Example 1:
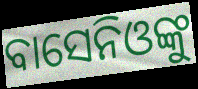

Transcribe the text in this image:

ବାସେନିଓଙ୍କୁ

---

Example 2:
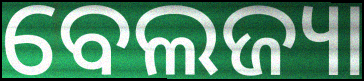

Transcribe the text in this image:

ବେଲଜ୍ୟା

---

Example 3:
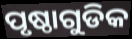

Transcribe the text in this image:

ପୃଷ୍ଠାଗୁଡିକ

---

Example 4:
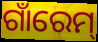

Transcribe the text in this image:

ଗାଁରେମ୍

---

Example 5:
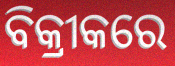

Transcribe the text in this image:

ବିକ୍ରୀକରେ